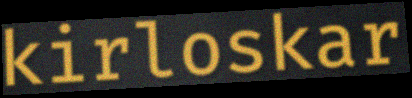
kirloskar